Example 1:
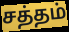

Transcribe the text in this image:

சத்தம்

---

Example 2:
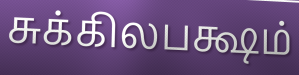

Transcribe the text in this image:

சுக்கிலபக்ஷம்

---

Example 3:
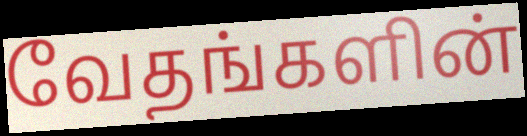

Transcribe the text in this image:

வேதங்களின்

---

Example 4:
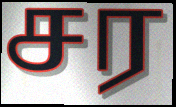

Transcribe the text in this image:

சர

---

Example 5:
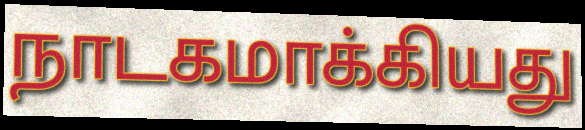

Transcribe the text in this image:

நாடகமாக்கியது